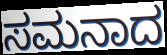
ಸಮನಾದ